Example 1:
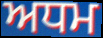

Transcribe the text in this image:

ਅਧਮ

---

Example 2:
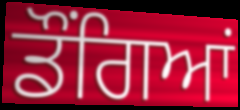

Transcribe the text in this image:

ਡੌਂਗਿਆਂ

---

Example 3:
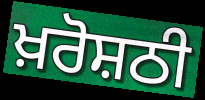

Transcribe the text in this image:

ਖ਼ਰੋਸ਼ਠੀ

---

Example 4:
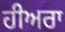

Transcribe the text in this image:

ਹੀਅਰਾ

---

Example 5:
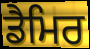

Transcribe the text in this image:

ਡੈਮਿਰ